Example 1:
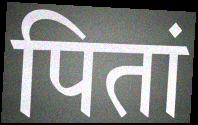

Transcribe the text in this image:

पितां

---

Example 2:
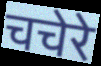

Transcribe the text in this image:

चचेरे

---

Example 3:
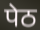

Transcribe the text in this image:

पेठ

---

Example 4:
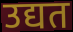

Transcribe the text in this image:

उद्यत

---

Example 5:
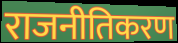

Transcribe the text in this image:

राजनीतिकरण